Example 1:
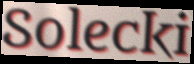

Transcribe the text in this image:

Solecki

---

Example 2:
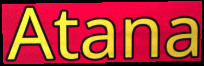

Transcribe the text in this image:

Atana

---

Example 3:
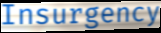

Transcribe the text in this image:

Insurgency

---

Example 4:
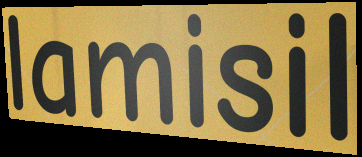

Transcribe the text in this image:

lamisil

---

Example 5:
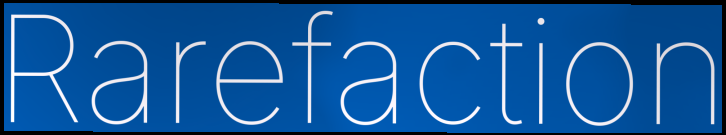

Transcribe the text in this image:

Rarefaction